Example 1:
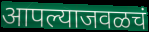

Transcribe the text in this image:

आपल्याजवळचं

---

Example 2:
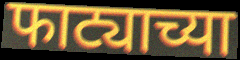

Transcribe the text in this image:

फाट्याच्या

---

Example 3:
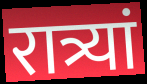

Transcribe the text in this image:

रात्र्यां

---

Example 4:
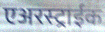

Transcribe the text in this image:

एअरस्ट्राईक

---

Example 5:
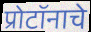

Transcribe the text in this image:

प्रोटॉनाचे